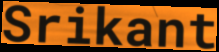
Srikant